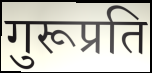
गुरूप्रति